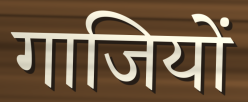
गाजियों